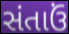
સંતાઉં